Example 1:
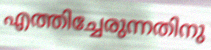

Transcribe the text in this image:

എത്തിച്ചേരുന്നതിനു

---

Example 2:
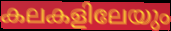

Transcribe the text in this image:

കലകളിലേയും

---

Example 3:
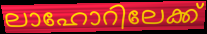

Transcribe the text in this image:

ലാഹോറിലേക്ക്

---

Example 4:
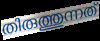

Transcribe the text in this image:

തിരുത്തുന്നത്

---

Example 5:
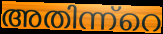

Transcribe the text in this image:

അതിന്ന്റെ